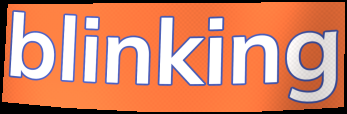
blinking